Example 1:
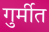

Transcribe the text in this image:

गुर्मीत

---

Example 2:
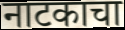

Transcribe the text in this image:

नाटकाचा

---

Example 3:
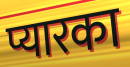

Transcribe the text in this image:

प्यारका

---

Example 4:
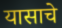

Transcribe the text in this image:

यासाचे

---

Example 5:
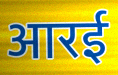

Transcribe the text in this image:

आरई